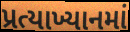
પ્રત્યાખ્યાનમાં